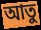
আতু